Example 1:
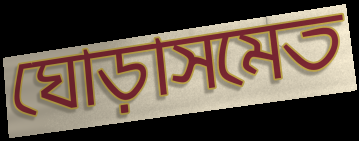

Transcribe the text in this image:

ঘোড়াসমেত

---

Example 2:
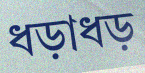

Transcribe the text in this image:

ধড়াধড়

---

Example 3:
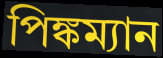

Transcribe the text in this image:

পিঙ্কম্যান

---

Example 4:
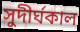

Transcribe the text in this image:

সুদীর্ঘকাল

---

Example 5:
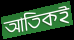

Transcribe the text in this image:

আতিকই